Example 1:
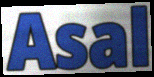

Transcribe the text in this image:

Asal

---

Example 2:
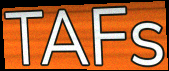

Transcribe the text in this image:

TAFs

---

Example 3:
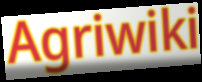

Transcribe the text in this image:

Agriwiki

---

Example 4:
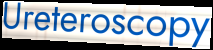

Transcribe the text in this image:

Ureteroscopy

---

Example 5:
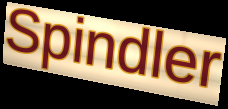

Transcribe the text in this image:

Spindler